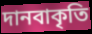
দানবাকৃতি